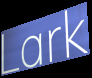
Lark